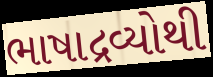
ભાષાદ્રવ્યોથી